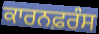
ਕਾਰਨਫ਼ਰੰਸ